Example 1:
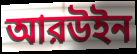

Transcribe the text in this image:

আরউইন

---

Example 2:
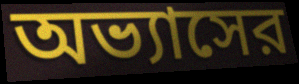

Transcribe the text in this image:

অভ্যাসের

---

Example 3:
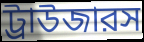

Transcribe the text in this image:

ট্রাউজারস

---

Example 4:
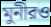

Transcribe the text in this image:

মুনীরও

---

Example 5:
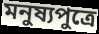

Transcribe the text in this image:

মনুষ্যপুত্রে